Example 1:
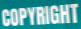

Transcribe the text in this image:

COPYRIGHT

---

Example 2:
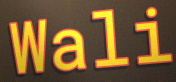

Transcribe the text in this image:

Wali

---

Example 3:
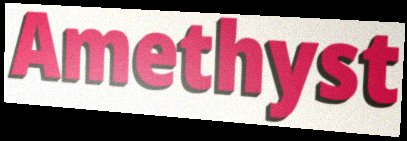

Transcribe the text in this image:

Amethyst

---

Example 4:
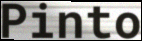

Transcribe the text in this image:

Pinto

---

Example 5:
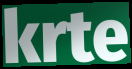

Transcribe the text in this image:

krte